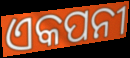
ଏକପନୀ